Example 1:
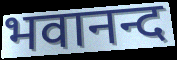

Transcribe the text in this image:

भवानन्द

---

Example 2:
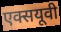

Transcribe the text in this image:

एक्सयूवी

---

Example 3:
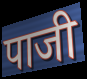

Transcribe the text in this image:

पाजी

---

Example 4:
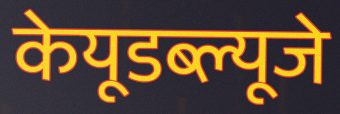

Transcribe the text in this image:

केयूडब्ल्यूजे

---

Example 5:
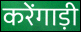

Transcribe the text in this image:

करेंगाड़ी